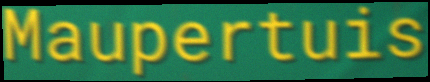
Maupertuis